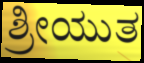
ಶ್ರೀಯುತ